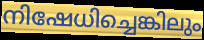
നിഷേധിച്ചെങ്കിലും